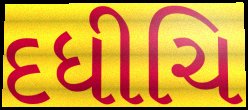
દધીચિ